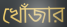
খোঁজার